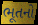
ભૂતનો